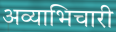
अव्याभिचारी